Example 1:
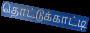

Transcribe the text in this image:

தொட்டுக்காட்டி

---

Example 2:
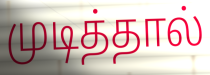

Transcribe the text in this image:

முடித்தால்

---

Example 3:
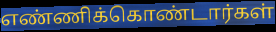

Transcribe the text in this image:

எண்ணிக்கொண்டார்கள்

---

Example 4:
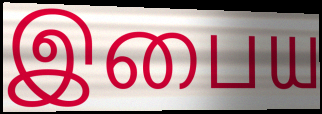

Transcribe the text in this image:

இபைய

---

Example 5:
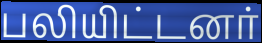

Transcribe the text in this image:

பலியிட்டனர்